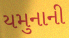
યમુનાની